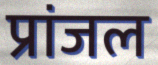
प्रांजल